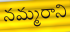
నమ్మరాని